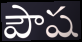
పౌష